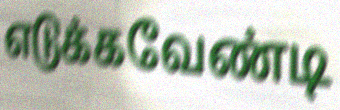
எடுக்கவேண்டி